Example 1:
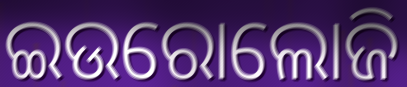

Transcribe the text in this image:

ଇଉରୋଲୋଜି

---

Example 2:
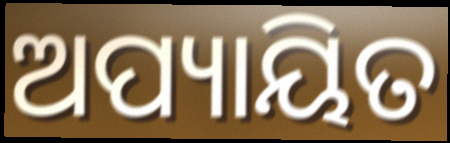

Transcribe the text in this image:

ଅପ୍ୟାୟିତ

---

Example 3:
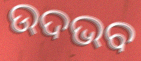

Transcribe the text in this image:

ଉଦଭବ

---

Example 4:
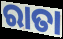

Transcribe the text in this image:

ରାତା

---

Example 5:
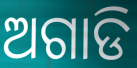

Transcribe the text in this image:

ଅଗାଡି